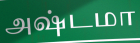
அஷ்டமா